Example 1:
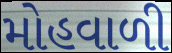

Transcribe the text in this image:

મોહવાળી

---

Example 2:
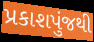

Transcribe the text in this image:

પ્રકાશપુંજથી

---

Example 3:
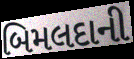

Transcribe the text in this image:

બિમલદાની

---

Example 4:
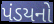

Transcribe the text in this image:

પંડયનો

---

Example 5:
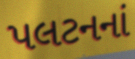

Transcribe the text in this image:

પલટનનાં